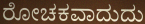
ರೋಚಕವಾದುದು